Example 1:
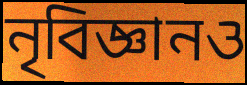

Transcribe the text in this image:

নৃবিজ্ঞানও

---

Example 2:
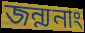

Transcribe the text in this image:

জন্মনাং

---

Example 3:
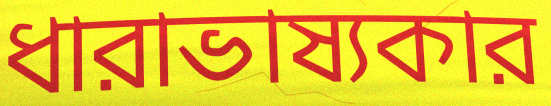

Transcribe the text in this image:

ধারাভাষ্যকার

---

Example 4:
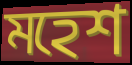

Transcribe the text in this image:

মহেশ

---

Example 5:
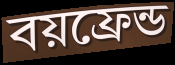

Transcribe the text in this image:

বয়ফ্রেন্ড